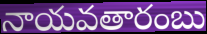
నాయవతారంబు